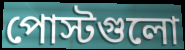
পোস্টগুলো